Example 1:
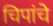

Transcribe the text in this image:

चिपांचे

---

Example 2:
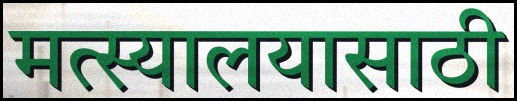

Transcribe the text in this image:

मत्स्यालयासाठी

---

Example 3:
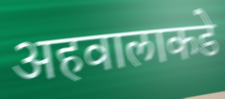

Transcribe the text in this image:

अहवालाकडे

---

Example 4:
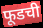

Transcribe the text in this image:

फूडची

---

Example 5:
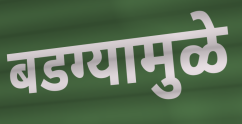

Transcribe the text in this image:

बडग्यामुळे